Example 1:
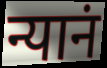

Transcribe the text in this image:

न्यानं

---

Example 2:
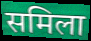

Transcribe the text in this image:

समिला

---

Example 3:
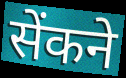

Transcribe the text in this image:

सेंकने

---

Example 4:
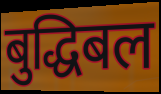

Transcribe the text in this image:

बुद्धिबल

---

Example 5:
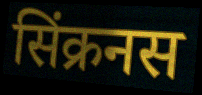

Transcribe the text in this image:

सिंक्रनस